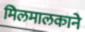
मिलमालकाने